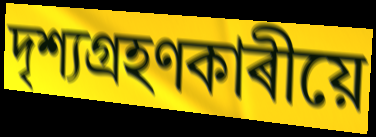
দৃশ্যগ্ৰহণকাৰীয়ে